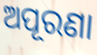
ଅପୂରଣା